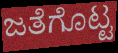
ಜತೆಗೊಟ್ಟ